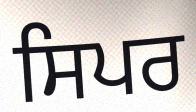
ਸਿਪਰ